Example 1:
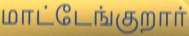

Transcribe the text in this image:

மாட்டேங்குறார்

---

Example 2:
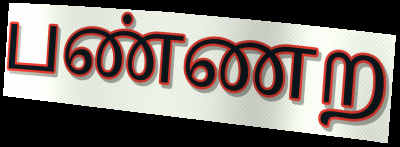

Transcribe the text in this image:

பண்ணற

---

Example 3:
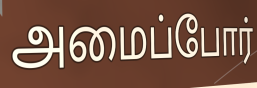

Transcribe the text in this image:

அமைப்போர்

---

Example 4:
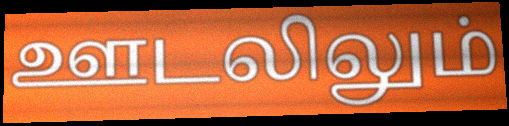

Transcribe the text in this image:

ஊடலிலும்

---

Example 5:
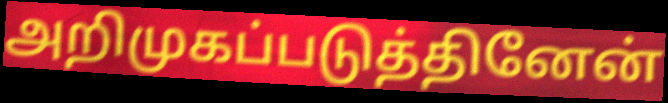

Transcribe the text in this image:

அறிமுகப்படுத்தினேன்